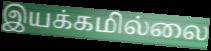
இயக்கமில்லை